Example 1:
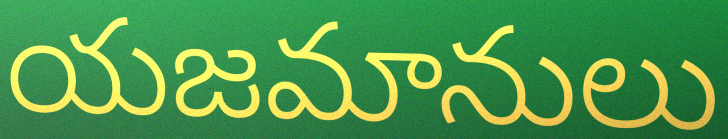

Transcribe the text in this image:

యజమానులు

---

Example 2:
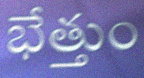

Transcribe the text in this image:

భేత్తుం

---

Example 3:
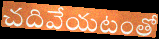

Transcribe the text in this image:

చదివేయటంతో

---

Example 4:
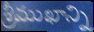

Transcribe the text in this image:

శ్రీముఖాన్ని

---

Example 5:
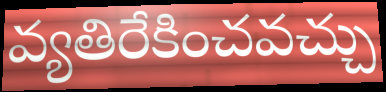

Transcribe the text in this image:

వ్యతిరేకించవచ్చు